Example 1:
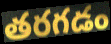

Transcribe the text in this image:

తరగడం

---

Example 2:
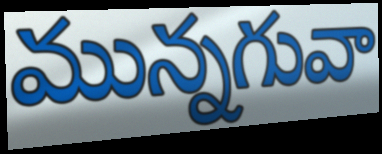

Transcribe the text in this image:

మున్నగువా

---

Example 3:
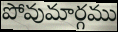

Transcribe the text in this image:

పోవుమార్గము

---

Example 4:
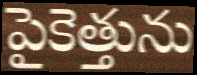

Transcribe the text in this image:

పైకెత్తును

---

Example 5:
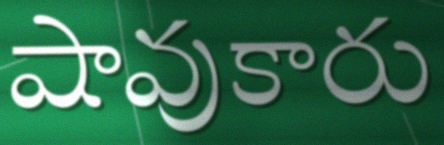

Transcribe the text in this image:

షావుకారు